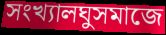
সংখ্যালঘুসমাজে